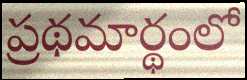
ప్రథమార్థంలో